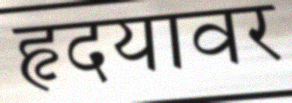
हृदयावर